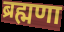
ब्रह्मणा